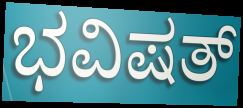
ಭವಿಷತ್